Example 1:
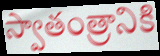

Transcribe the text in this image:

స్వాతంత్రానికి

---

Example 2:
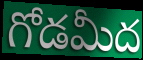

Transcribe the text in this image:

గోడమీద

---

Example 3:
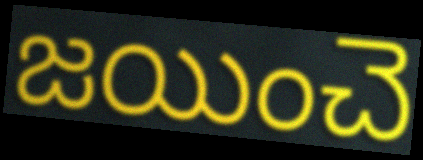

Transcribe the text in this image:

జయించె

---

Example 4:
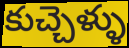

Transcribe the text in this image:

కుచ్చెళ్ళు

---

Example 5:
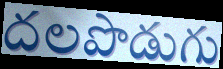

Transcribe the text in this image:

దలపొడుగు